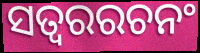
ସତ୍ୱରରଚନଂ